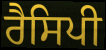
ਰੈਸਿਪੀ